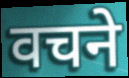
वचने